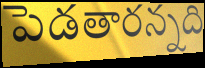
పెడతారన్నది